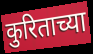
कुरिताच्या